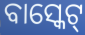
ବାସ୍କେଟ୍